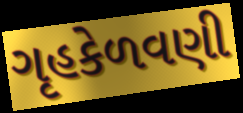
ગૃહકેળવણી